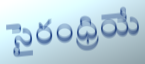
సైరంధ్రియే